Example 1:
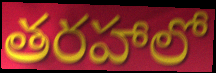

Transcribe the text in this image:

తరహాలో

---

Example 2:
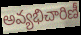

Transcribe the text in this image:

అవ్యభిచారిణీ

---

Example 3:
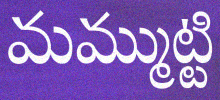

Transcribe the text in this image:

మమ్ముట్టి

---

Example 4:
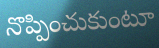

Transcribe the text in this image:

నొప్పించుకుంటూ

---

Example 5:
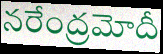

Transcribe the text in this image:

నరేంద్రమోదీ